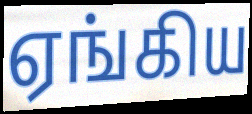
ஏங்கிய